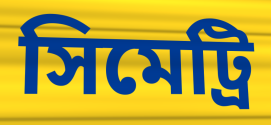
সিমেট্রি